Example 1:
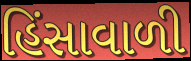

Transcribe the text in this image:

હિંસાવાળી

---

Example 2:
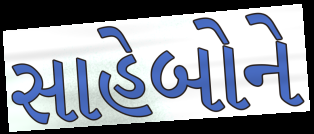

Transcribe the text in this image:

સાહેબોને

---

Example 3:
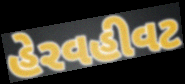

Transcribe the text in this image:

હેરવહીવટ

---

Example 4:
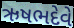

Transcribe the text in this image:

ઋષભદેવે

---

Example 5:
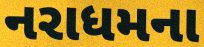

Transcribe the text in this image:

નરાધમના